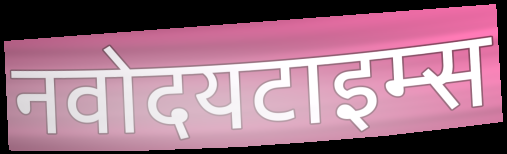
नवोदयटाइम्स